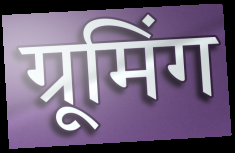
ग्रूमिंग